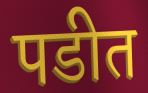
पडीत